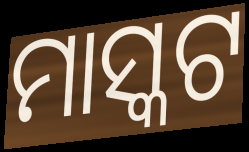
ମାସ୍କଟ